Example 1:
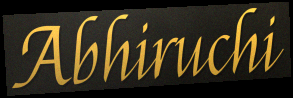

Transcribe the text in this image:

Abhiruchi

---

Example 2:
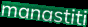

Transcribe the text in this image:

manastiti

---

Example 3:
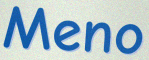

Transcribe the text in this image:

Meno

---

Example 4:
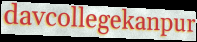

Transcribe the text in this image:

davcollegekanpur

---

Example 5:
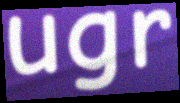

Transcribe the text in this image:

ugr